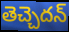
తెచ్చెదన్